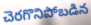
చెరగొనిపోబడిన